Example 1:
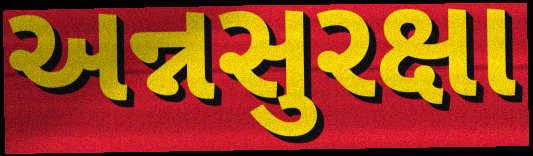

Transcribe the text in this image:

અન્નસુરક્ષા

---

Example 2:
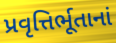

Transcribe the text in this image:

પ્રવૃત્તિર્ભૂતાનાં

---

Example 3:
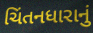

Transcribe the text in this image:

ચિંતનધારાનું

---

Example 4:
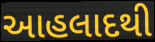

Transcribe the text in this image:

આહલાદથી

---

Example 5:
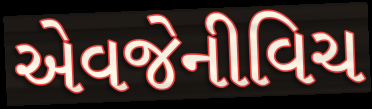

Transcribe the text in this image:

એવજેનીવિચ